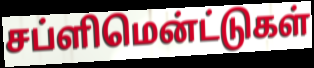
சப்ளிமென்ட்டுகள்